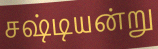
சஷ்டியன்று